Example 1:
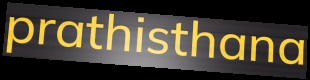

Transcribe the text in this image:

prathisthana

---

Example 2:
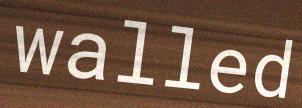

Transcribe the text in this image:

walled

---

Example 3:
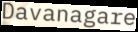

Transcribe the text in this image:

Davanagare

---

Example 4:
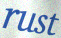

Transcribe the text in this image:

rust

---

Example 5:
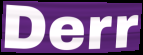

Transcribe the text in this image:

Derr